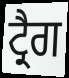
ਟ੍ਰੈਗ